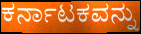
ಕರ್ನಾಟಕವನ್ನು